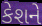
કેશને